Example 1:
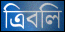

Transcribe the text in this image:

ত্রিবলি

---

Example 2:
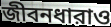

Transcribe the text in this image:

জীবনধারাও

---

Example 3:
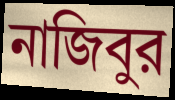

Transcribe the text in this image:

নাজিবুর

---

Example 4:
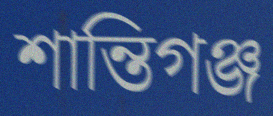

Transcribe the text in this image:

শান্তিগঞ্জ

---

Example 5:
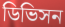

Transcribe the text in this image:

ডিভিসন